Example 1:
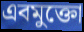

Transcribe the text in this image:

এবমুক্তো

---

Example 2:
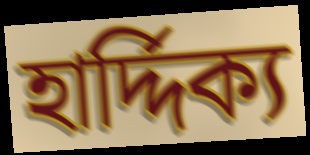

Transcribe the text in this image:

হার্দ্দিক্য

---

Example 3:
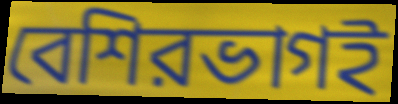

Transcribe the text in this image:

বেশিরভাগই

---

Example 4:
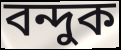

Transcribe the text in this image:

বন্দুক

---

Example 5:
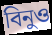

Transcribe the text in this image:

বিনুও